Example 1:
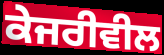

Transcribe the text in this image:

ਕੇਜਰੀਵੀਲ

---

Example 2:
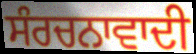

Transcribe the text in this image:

ਸੰਰਚਨਾਵਾਦੀ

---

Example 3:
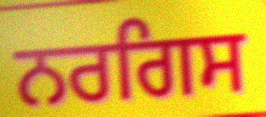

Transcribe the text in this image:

ਨਰਗਿਸ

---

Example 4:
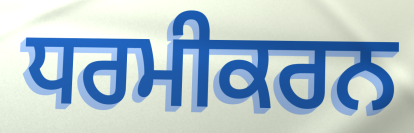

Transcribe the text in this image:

ਧਰਮੀਕਰਨ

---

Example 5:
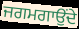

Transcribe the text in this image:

ਜਗਮਗਾਉਂਦੇ